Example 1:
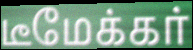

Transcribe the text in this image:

டீமேக்கர்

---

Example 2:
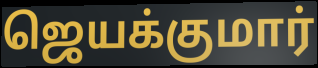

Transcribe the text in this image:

ஜெயக்குமார்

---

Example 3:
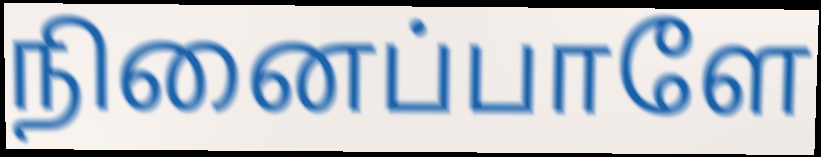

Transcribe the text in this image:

நினைப்பாளே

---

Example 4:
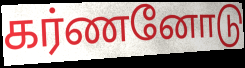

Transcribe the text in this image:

கர்ணனோடு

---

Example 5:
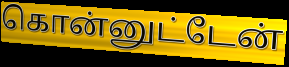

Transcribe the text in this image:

கொன்னுட்டேன்